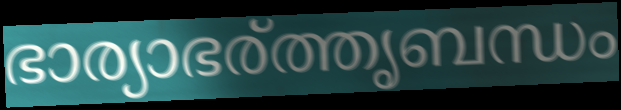
ഭാര്യാഭര്ത്തൃബന്ധം